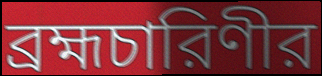
ব্রহ্মচারিণীর